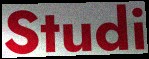
Studi